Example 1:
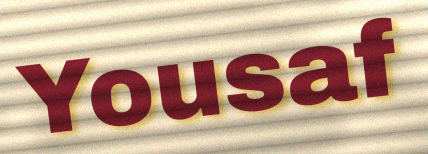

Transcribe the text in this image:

Yousaf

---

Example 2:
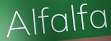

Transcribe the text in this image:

Alfalfa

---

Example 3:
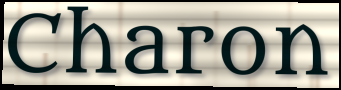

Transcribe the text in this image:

Charon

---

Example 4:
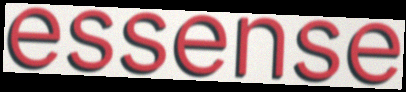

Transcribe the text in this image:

essense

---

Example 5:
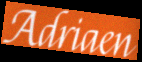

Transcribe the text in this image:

Adriaen